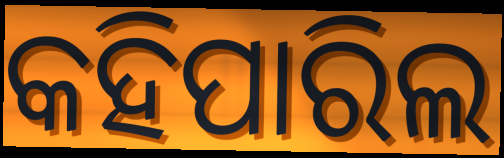
କହିପାରିଲ